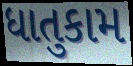
ધાતુકામ